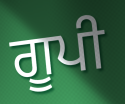
ਗੂਪੀ